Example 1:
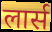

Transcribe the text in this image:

लार्स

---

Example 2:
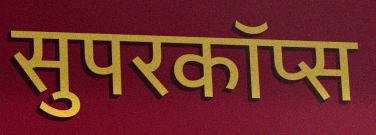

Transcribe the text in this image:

सुपरकॉप्स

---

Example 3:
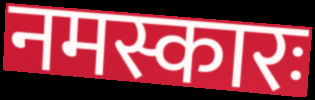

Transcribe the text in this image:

नमस्कारः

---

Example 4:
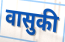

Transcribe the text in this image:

वासुकी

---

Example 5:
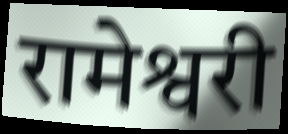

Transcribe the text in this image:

रामेश्वरी